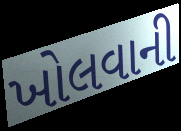
ખોલવાની